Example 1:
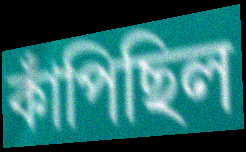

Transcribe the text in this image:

কাঁপিছিল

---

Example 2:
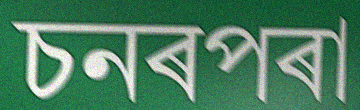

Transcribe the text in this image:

চনৰপৰা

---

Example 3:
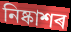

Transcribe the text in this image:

নিষ্কাশৰ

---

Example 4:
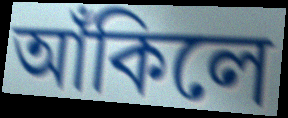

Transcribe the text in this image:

আঁকিলে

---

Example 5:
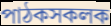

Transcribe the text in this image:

পাঠকসকলক